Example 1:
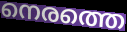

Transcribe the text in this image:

നെരത്തെ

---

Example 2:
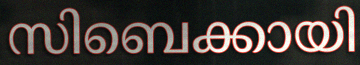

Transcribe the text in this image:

സിബെക്കായി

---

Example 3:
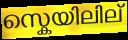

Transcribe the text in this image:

സ്കെയിലില്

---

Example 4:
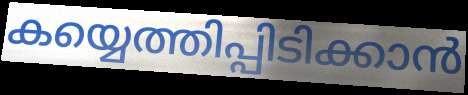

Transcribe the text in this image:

കയ്യെത്തിപ്പിടിക്കാൻ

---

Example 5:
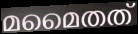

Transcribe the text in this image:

മമൈതത്